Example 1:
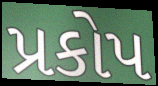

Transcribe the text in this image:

પ્રકોપ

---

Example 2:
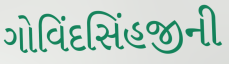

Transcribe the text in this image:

ગોવિંદસિંહજીની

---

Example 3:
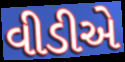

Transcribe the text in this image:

વીડીએ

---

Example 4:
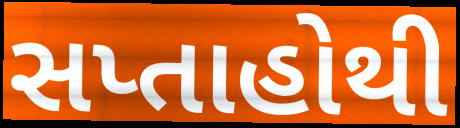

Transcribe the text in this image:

સપ્તાહોથી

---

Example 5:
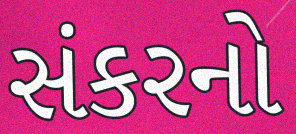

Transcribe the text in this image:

સંકરનો